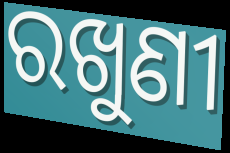
ରଖୁଣୀ